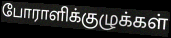
போராளிக்குழுக்கள்